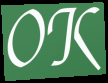
OK